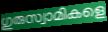
ഗുരുസ്വാമികളെ